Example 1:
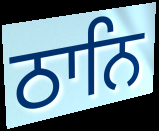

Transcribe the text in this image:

ਠਾਨਿ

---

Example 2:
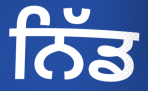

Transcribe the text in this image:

ਨਿੱਡ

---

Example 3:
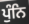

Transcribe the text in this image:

ਪੁੰਨਿ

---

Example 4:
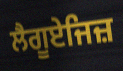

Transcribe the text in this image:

ਲੈਗੂਏਜਿਜ਼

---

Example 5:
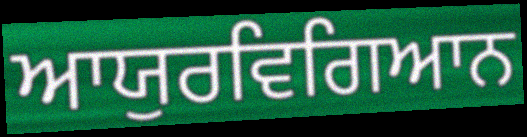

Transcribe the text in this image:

ਆਯੁਰਵਿਗਿਆਨ